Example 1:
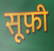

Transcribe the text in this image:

सूफ़ी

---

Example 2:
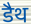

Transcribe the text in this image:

डैथ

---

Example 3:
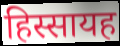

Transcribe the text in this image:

हिस्सायह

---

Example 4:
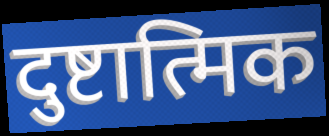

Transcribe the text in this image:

दुष्टात्मिक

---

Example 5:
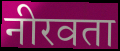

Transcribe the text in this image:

नीरवता